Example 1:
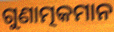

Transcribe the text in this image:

ଗୁଣାତ୍ମକମାନ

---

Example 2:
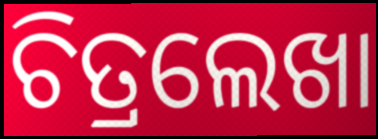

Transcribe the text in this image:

ଚିତ୍ରଲେଖା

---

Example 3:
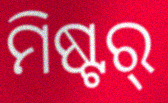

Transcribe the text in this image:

ମିଷ୍ଟର୍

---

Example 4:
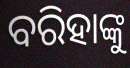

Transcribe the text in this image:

ବରିହାଙ୍କୁ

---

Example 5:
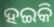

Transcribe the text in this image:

ହଇକି